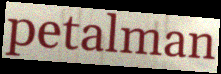
petalman